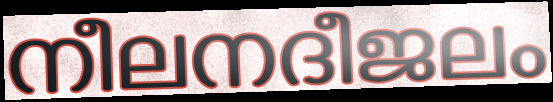
നീലനദീജലം